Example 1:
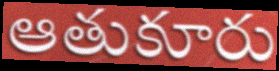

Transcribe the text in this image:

ఆతుకూరు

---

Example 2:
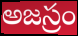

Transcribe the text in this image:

అజస్రం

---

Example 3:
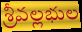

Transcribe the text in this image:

శ్రీవల్లభుల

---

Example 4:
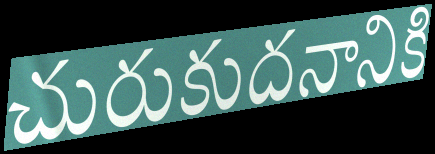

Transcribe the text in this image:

చురుకుదనానికి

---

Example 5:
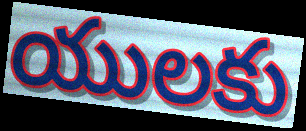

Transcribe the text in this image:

యులకు